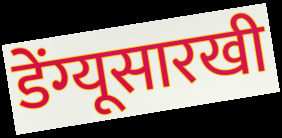
डेंग्यूसारखी